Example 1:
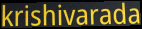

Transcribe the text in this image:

krishivarada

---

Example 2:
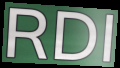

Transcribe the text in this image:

RDI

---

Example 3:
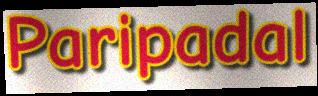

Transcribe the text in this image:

Paripadal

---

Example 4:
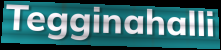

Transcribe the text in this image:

Tegginahalli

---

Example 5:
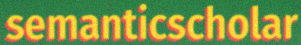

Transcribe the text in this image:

semanticscholar